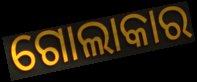
ଗୋଲାକାର